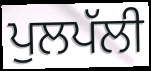
ਪੁਲਪੱਲੀ